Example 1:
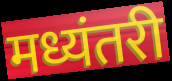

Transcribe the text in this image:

मध्यंतरी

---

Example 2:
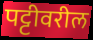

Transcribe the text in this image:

पट्टीवरील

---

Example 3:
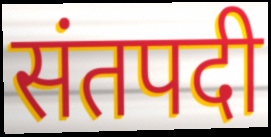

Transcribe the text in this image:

संतपदी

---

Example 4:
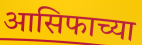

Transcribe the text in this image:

आसिफाच्या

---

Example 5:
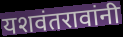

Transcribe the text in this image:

यशवंतरावांनी